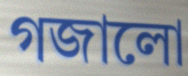
গজালো